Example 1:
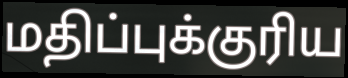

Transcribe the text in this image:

மதிப்புக்குரிய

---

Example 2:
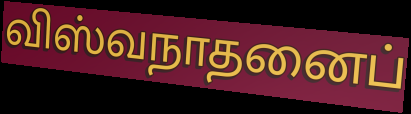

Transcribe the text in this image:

விஸ்வநாதனைப்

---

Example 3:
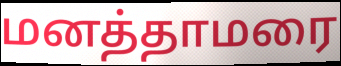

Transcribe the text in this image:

மனத்தாமரை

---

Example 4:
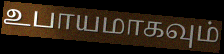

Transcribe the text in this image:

உபாயமாகவும்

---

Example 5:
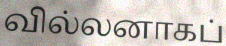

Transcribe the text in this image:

வில்லனாகப்